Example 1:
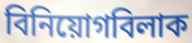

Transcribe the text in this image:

বিনিয়োগবিলাক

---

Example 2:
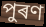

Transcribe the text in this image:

পুৰণ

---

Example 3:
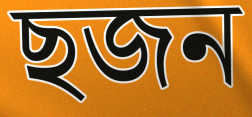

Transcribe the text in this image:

ছজন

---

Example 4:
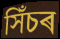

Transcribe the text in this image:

সিঁচৰ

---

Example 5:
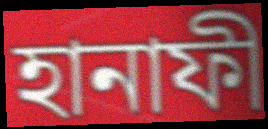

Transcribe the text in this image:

হানাফী